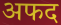
अफद